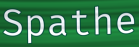
Spathe